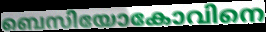
ബെസിയോകോവിനെ